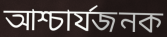
আশ্চার্যজনক